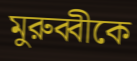
মুরুব্বীকে